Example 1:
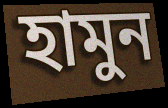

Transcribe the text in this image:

হামুন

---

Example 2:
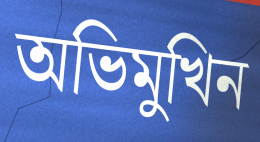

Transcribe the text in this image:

অভিমুখিন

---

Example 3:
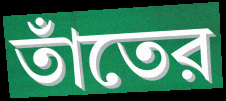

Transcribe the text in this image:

তাঁতের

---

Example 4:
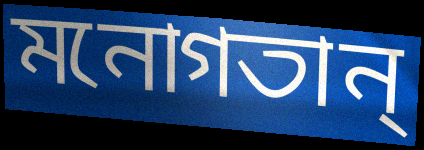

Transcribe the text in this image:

মনোগতান্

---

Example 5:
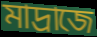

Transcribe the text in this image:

মাদ্রাজে